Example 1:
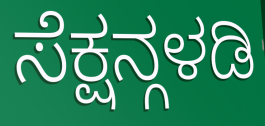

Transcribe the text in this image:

ಸೆಕ್ಷನ್ಗಳಡಿ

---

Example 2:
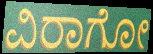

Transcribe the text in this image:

ವಿರಾಗೋ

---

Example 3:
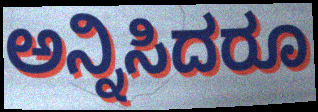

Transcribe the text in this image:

ಅನ್ನಿಸಿದರೂ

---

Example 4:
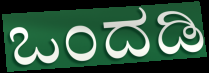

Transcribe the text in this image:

ಒಂದಡಿ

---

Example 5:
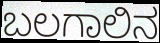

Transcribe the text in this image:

ಬಲಗಾಲಿನ